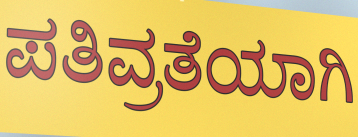
ಪತಿವ್ರತೆಯಾಗಿ